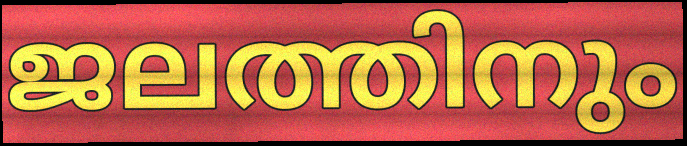
ജലത്തിനും